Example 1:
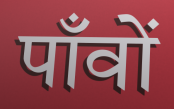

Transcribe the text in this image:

पाँवों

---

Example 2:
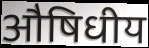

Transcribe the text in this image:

औषिधीय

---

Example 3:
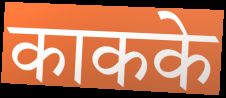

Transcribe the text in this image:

काकके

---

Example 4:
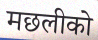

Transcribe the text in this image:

मछलीको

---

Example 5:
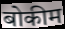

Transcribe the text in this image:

बोकीम